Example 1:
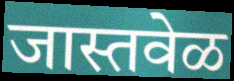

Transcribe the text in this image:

जास्तवेळ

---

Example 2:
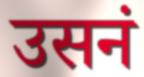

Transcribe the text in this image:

उसनं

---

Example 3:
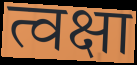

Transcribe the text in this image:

त्वक्षा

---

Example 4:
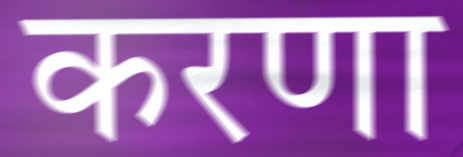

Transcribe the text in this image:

करणा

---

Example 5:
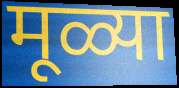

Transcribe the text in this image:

मूळ्या